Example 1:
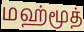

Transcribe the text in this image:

மஹ்மூத்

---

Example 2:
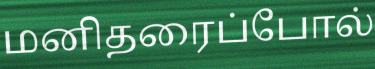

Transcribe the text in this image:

மனிதரைப்போல்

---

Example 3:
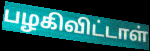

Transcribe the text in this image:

பழகிவிட்டாள்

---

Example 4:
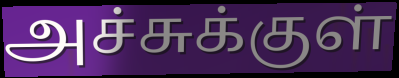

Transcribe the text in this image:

அச்சுக்குள்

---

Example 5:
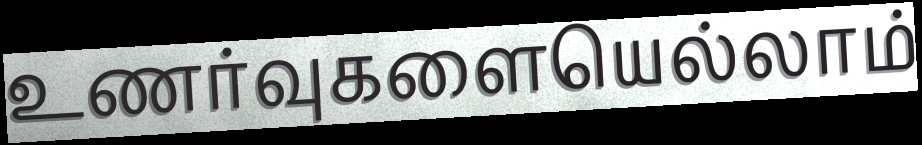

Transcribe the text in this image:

உணர்வுகளையெல்லாம்